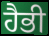
ਹੈਭੀ